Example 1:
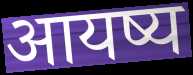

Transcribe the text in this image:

आयष्य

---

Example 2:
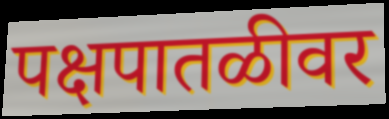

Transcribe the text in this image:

पक्षपातळीवर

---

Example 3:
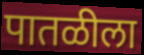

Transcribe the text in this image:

पातळीला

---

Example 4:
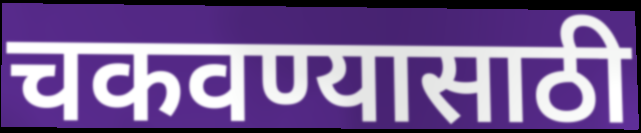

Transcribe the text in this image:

चकवण्यासाठी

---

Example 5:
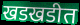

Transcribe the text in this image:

खडखडीत